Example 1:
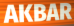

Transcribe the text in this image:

AKBAR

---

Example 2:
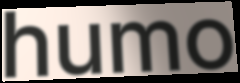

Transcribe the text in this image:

humo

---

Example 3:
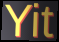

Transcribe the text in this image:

Yit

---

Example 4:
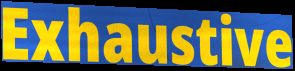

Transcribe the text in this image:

Exhaustive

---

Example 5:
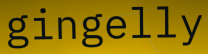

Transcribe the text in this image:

gingelly